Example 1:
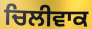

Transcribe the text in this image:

ਚਿਲੀਵਾਕ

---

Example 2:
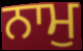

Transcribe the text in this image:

ਨਾਮੁ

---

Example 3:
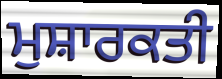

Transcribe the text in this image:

ਮੁਸ਼ਾਰਕਤੀ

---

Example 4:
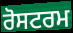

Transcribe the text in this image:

ਰੋਸਟਰਮ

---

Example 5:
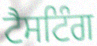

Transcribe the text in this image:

ਟੈਸਟਿੰਗ